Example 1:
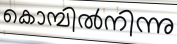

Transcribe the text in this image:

കൊമ്പിൽനിന്നു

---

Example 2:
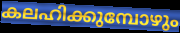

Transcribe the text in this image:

കലഹിക്കുമ്പോഴും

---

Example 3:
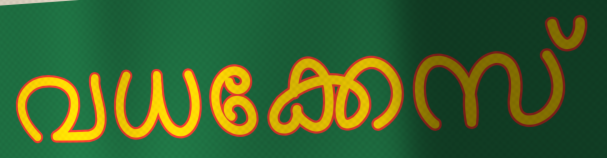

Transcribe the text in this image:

വധക്കേസ്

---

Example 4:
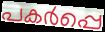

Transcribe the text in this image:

പകർപ്പെ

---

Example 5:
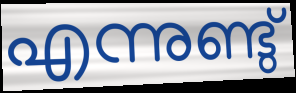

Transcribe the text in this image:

എന്നുണ്ടു്